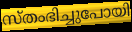
സ്തംഭിച്ചുപോയി